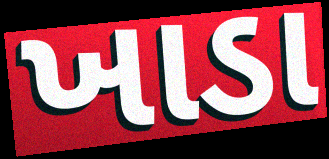
ખાડા